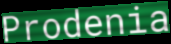
Prodenia